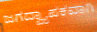
ಜಗದ್ವ್ಯಾಪಕವಾಗಿ